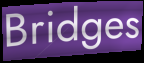
Bridges